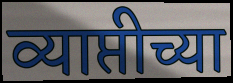
व्याप्तीच्या